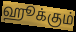
ஹூக்கும்